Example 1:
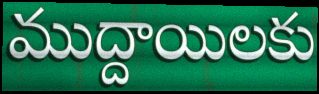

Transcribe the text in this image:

ముద్దాయిలకు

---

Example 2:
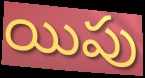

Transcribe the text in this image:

యిపు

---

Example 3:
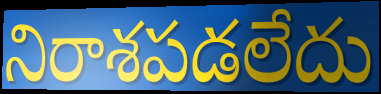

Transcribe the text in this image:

నిరాశపడలేదు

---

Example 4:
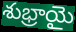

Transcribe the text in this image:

శుభ్రాయై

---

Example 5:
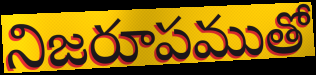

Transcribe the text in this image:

నిజరూపముతో